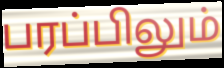
பரப்பிலும்